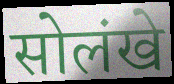
सोलंखे